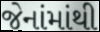
જેનાંમાંથી